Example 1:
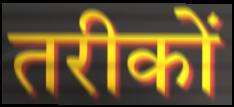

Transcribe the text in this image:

तरीकों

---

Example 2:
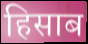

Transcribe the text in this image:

हिसाब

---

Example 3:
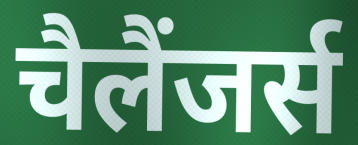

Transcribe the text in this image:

चैलैंजर्स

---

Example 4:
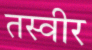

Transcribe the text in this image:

तस्वीर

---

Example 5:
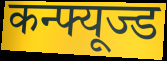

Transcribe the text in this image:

कन्फ्यूज्ड